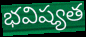
భవిష్యత